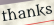
thanks